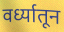
वर्ध्यातून